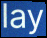
lay